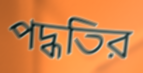
পদ্ধতির